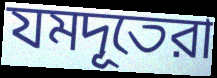
যমদূতেরা